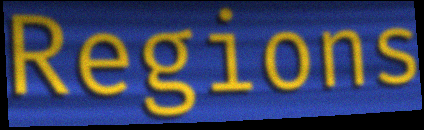
Regions